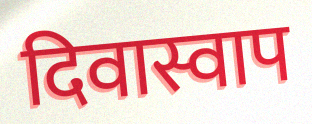
दिवास्वाप